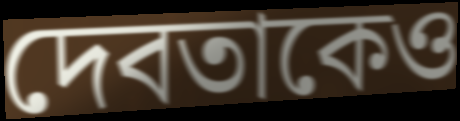
দেবতাকেও